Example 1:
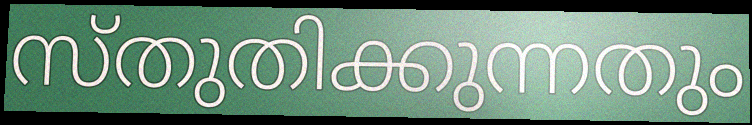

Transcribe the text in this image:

സ്തുതിക്കുന്നതും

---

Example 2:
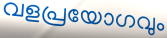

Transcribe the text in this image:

വളപ്രയോഗവും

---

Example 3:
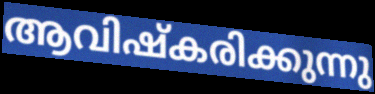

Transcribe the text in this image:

ആവിഷ്കരിക്കുന്നു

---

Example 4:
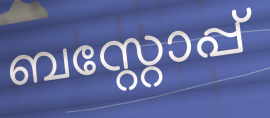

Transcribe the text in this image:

ബസ്റ്റോപ്പ്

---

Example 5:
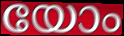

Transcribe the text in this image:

യോം